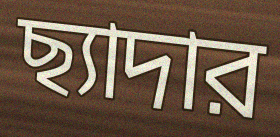
ছ্যাদার